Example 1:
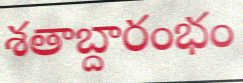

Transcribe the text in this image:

శతాబ్దారంభం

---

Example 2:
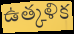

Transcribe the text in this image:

ఉత్కళిక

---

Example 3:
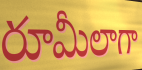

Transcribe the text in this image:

రూమీలాగా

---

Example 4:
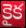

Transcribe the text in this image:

కైక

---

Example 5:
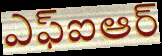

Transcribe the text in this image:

ఎఫ్ఐఆర్